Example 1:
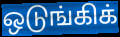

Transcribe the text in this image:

ஒடுங்கிக்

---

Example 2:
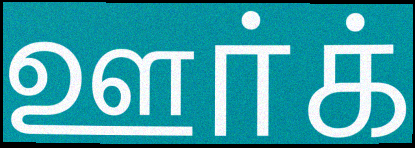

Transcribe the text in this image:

ஊர்க்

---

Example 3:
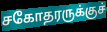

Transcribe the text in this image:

சகோதரருக்குச்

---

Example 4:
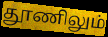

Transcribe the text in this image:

தூணிலும்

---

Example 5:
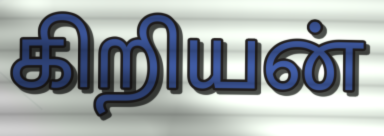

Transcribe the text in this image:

கிறியன்